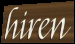
hiren